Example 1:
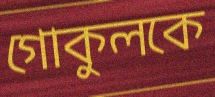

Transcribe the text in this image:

গোকুলকে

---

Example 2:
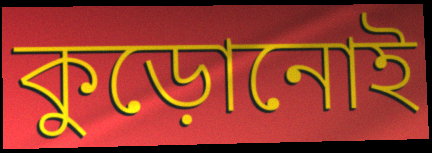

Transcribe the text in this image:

কুড়োনোই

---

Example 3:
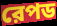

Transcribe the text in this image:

রেপড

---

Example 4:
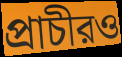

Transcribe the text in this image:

প্রাচীরও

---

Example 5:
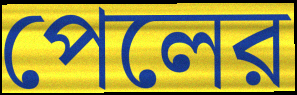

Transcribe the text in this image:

পেলের